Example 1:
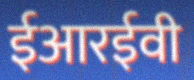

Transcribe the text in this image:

ईआरईवी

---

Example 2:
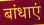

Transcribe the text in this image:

बांधाएं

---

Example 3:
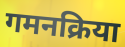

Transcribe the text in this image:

गमनक्रिया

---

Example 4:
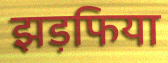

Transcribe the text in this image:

झड़फिया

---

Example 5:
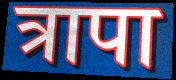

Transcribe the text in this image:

त्रापा